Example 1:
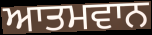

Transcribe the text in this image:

ਆਤਮਵਾਨ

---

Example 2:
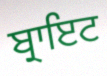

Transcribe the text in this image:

ਬ੍ਰਾਇਟ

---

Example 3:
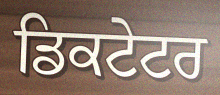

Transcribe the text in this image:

ਡਿਕਟੇਟਰ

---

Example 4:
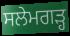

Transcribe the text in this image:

ਸਲੇਮਗੜ੍ਹ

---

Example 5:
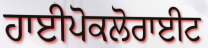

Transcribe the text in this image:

ਹਾਈਪੋਕਲੋਰਾਈਟ